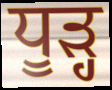
ਧੂੜ੍ਹ